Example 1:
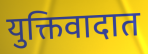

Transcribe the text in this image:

युक्तिवादात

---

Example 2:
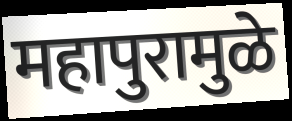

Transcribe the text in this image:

महापुरामुळे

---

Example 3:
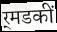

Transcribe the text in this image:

र्मडकीं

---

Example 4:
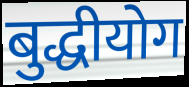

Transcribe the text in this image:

बुद्धीयोग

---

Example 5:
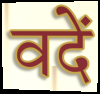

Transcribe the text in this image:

वदें